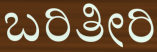
ಬರಿತೀರಿ